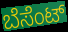
ಬೆಸೆಂಟ್